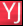
YJ